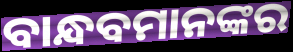
ବାନ୍ଧବମାନଙ୍କର